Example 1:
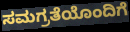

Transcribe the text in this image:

ಸಮಗ್ರತೆಯೊಂದಿಗೆ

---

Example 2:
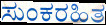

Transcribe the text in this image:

ಸುಂಕರಹಿತ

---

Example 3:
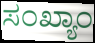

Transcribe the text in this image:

ಸಂಖ್ಯಾಂ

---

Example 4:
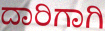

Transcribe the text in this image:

ದಾರಿಗಾಗಿ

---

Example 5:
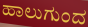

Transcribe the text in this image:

ಹಾಲುಗುಂದ